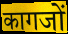
कागजों